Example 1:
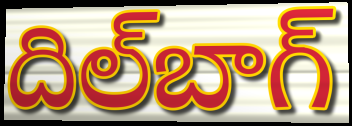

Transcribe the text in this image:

దిల్‌బాగ్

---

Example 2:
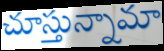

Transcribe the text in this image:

చూస్తున్నామా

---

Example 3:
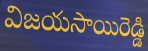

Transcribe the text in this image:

విజయసాయిరెడ్డి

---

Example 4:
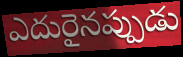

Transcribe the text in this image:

ఎదురైనప్పుడు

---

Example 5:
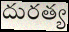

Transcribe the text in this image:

దురత్య